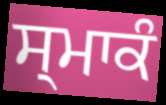
ਸ੍ਮਾਕੰ